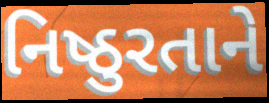
નિષ્ઠુરતાને